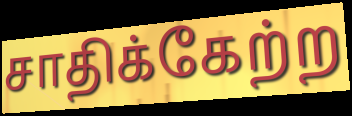
சாதிக்கேற்ற